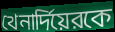
থেনার্দিয়েরকে